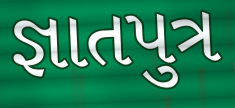
જ્ઞાતપુત્ર